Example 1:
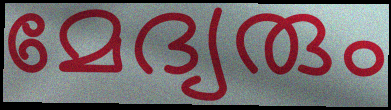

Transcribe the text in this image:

മേദ്യരും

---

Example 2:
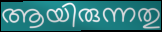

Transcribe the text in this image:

ആയിരുന്നതു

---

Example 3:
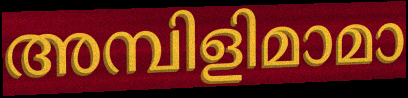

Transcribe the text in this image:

അമ്പിളിമാമാ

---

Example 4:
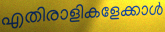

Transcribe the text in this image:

എതിരാളികളേക്കാൾ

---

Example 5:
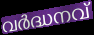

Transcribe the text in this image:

വർദ്ധനവ്